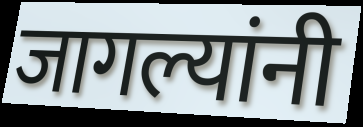
जागल्यांनी